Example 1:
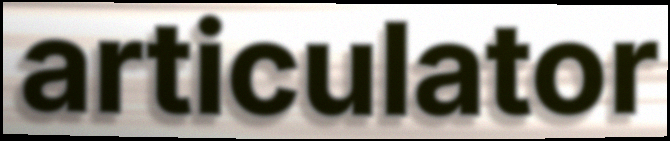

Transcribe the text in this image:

articulator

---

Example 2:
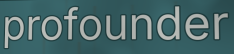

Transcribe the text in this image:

profounder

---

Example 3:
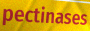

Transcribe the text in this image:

pectinases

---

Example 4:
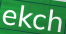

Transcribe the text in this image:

ekch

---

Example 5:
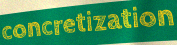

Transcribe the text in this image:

concretization